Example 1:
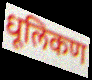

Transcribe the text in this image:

धूलिकण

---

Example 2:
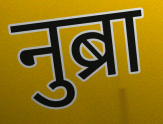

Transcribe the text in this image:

नुब्रा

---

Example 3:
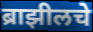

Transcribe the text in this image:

ब्राझीलचे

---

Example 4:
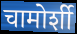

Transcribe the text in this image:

चामोर्शी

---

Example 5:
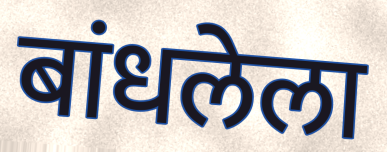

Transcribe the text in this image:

बांधलेला